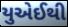
યુએઈથી